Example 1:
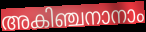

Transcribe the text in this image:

അകിഞ്ചനാനാം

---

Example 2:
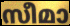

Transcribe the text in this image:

സീമാ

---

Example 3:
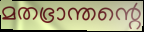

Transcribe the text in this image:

മതഭ്രാന്തന്റെ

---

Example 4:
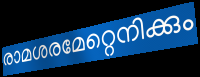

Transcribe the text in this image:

രാമശരമേറ്റെനിക്കും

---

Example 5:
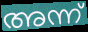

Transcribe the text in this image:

അന്ന്